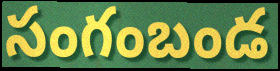
సంగంబండ